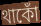
থাকোঁ